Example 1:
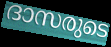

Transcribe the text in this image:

ദാസരുടെ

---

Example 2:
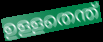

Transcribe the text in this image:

ഉള്ളതെന്ത്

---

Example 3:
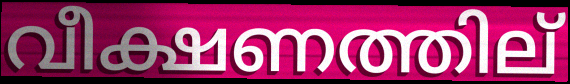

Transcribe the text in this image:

വീക്ഷണത്തില്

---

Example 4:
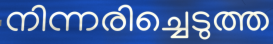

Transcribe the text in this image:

നിന്നരിച്ചെടുത്ത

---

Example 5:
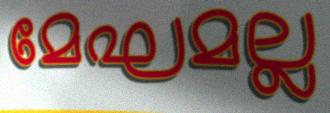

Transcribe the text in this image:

മേഘമല്ല